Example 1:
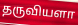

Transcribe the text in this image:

தருவியளா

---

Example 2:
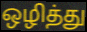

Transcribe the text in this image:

ஒழித்து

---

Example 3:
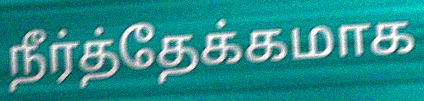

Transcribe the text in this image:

நீர்த்தேக்கமாக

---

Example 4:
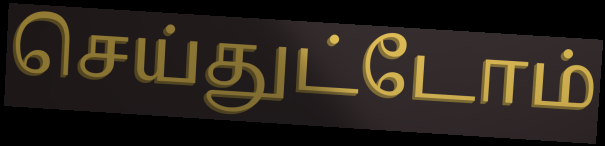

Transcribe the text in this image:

செய்துட்டோம்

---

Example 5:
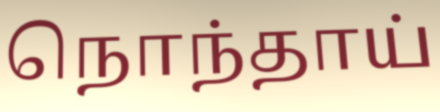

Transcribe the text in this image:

நொந்தாய்